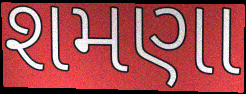
શમણા